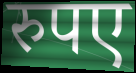
रुपए